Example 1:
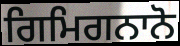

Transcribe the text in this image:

ਗਿਮਿਗਨਾਨੋ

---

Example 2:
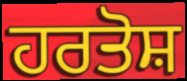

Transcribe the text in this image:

ਹਰਤੋਸ਼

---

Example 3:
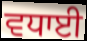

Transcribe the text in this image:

ਵਧਾਈ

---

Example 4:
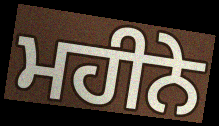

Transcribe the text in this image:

ਮਹੀਨੇ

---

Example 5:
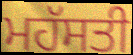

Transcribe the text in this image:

ਮਹੱਸਤੀ